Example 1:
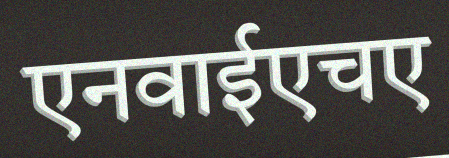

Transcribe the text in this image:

एनवाईएचए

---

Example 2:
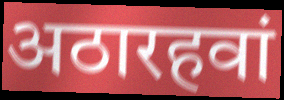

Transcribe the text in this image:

अठारहवां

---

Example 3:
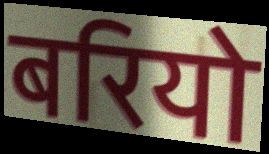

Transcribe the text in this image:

बरियो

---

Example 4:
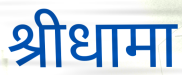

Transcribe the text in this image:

श्रीधामा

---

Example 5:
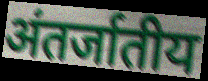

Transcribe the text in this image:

अंतर्जातीय